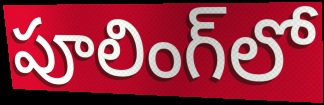
పూలింగ్‌లో